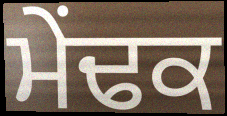
ਮੇਂਢਕ